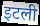
इटली